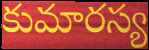
కుమారస్య